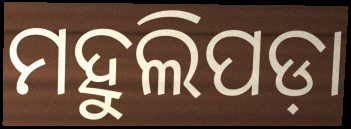
ମହୁଲିପଡ଼ା